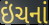
ઇંચનાં